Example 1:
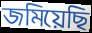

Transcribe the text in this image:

জমিয়েছি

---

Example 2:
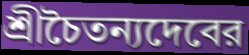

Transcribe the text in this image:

শ্রীচৈতন্যদেবের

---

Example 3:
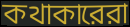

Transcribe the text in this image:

কথাকারেরা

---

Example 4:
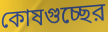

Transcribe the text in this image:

কোষগুচ্ছের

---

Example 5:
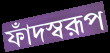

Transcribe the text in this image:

ফাঁদস্বরূপ